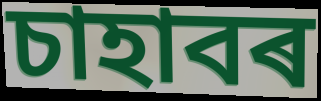
চাহাবৰ